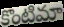
కొంటిమా